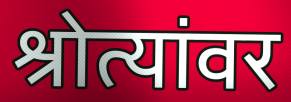
श्रोत्यांवर